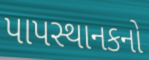
પાપસ્થાનકનો